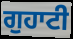
ਗੁਹਾਟੀ